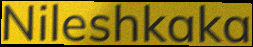
Nileshkaka